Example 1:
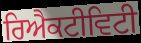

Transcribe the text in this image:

ਰਿਐਕਟੀਵਿਟੀ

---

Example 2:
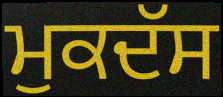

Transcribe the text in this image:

ਮੁਕਦੱਸ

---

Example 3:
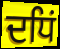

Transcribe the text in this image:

ਦਧਿਂ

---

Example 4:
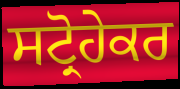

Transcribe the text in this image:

ਸਟ੍ਰੋਹੇਕਰ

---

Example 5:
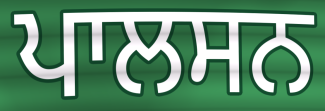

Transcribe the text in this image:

ਪਾਲਸਨ